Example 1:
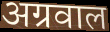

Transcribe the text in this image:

अग्रवाल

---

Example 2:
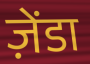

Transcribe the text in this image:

ज़ेंडा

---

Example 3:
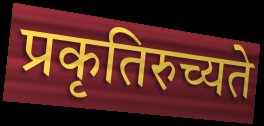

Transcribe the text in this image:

प्रकृतिरुच्यते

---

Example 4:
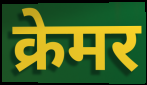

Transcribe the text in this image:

क्रेमर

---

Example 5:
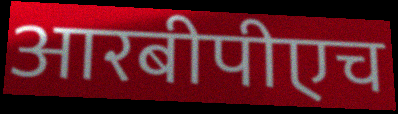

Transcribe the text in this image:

आरबीपीएच